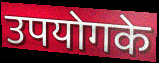
उपयोगके